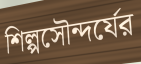
শিল্পসৌন্দর্যের